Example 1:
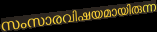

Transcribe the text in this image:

സംസാരവിഷയമായിരുന്ന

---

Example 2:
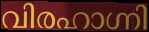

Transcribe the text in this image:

വിരഹാഗ്നി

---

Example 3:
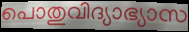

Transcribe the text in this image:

പൊതുവിദ്യാഭ്യാസ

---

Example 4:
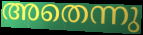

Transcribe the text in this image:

അതെന്നു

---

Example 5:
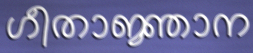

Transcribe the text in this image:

ഗീതാജ്ഞാന